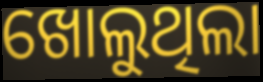
ଖୋଲୁଥିଲା